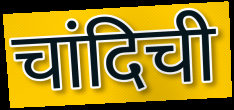
चांदिची